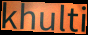
khulti